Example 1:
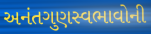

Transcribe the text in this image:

અનંતગુણસ્વભાવોની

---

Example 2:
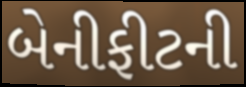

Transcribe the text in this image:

બેનીફીટની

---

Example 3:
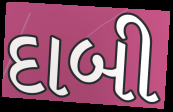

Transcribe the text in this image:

દાબી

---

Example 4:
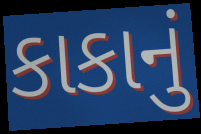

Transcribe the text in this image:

કાકાનું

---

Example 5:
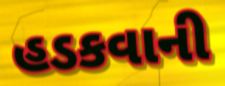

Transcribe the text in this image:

હડકવાની